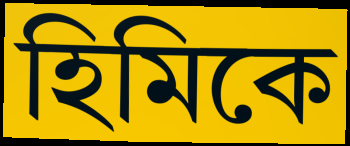
হিমিকে